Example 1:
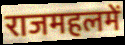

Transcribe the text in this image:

राजमहलमें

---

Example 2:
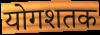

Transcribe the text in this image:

योगशतक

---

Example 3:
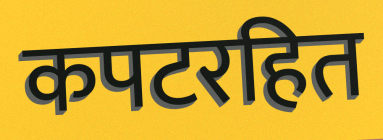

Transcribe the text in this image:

कपटरहित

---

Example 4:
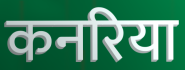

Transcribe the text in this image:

कनरिया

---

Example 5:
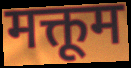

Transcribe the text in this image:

मक्तूम